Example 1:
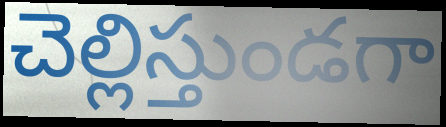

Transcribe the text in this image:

చెల్లిస్తుండగా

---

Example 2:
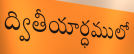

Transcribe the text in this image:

ద్వితీయార్ధములో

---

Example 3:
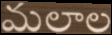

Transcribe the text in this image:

మలాల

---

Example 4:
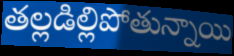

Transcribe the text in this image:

తల్లడిల్లిపోతున్నాయి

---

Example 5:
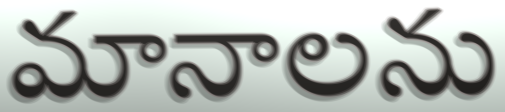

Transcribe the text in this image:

మానాలను